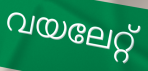
വയലേറ്റ്